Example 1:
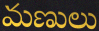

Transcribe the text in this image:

మణులు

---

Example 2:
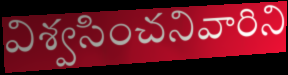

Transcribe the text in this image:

విశ్వసించనివారిని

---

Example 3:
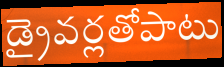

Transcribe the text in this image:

డ్రైవర్లతోపాటు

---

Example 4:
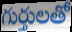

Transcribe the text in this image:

గుర్తులతో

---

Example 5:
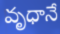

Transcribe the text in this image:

వృధానే